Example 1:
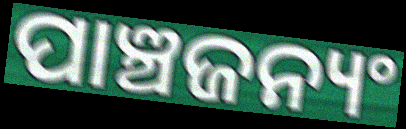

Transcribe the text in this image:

ପାଞ୍ଚଜନ୍ୟଂ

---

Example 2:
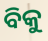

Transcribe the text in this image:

ବିକୁ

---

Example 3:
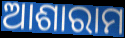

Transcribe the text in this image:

ଆଶାରାମ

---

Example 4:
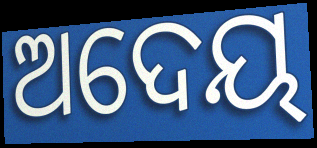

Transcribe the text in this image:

ଅଦେୟ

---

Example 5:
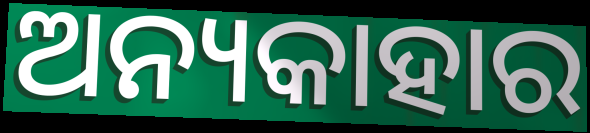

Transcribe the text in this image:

ଅନ୍ୟକାହାର